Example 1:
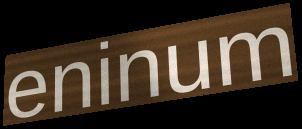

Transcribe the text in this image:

eninum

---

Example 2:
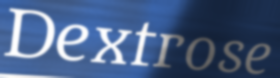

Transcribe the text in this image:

Dextrose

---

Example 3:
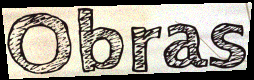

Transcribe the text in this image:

Obras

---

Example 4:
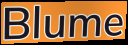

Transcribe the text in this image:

Blume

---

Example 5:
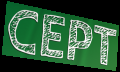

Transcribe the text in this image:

CEPT